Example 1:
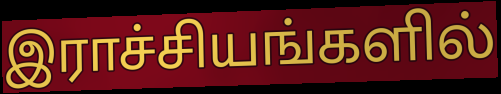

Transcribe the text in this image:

இராச்சியங்களில்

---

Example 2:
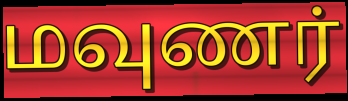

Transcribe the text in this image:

மவுணர்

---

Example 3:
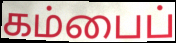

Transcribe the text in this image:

கம்பைப்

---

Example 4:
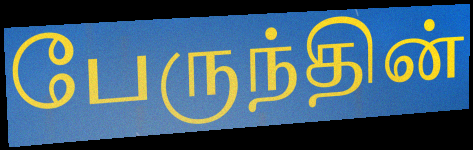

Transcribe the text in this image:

பேருந்தின்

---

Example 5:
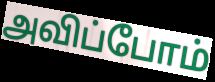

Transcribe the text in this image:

அவிப்போம்